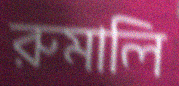
রুমালি